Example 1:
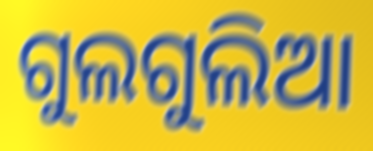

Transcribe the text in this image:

ଗୁଲଗୁଲିଆ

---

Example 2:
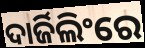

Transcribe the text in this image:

ଦାର୍ଜିଲିଂରେ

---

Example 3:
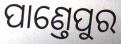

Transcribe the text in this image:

ପାଣ୍ତେପୁର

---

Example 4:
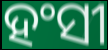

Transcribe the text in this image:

ହଂସୀ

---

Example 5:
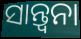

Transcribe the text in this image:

ସାନ୍ତ୍ବନା